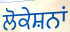
ਲੋਕੇਸ਼ਨਾਂ